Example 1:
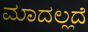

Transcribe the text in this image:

ಮಾದಲ್ಲದೆ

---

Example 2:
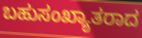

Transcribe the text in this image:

ಬಹುಸಂಖ್ಯಾತರಾದ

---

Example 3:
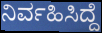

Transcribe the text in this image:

ನಿರ್ವಹಿಸಿದ್ದೆ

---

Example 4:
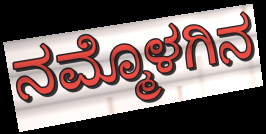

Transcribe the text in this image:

ನಮ್ಮೊಳಗಿನ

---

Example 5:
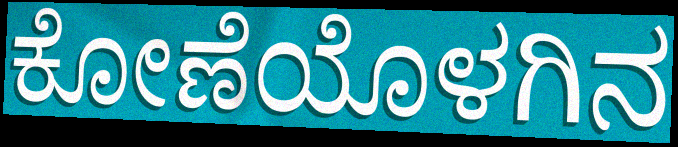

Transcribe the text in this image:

ಕೋಣೆಯೊಳಗಿನ